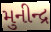
મુનીન્દ્ર